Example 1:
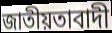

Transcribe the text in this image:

জাতীয়তাবাদী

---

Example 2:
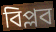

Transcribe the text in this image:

বিপ্লব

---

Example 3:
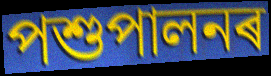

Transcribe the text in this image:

পশুপালনৰ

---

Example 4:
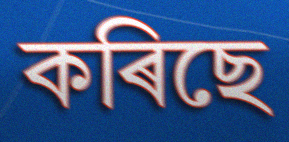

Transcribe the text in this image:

কৰিছে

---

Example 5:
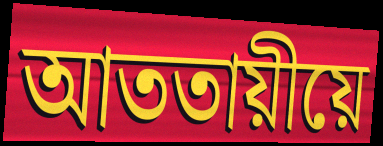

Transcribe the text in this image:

আততায়ীয়ে